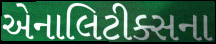
એનાલિટીક્સના